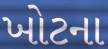
ખોટના